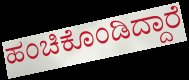
ಹಂಚಿಕೊಂಡಿದ್ದಾರೆ